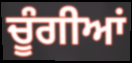
ਚੂੰਗੀਆਂ